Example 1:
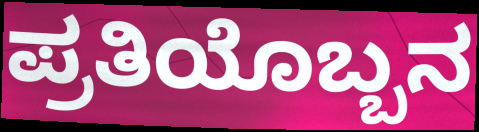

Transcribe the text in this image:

ಪ್ರತಿಯೊಬ್ಬನ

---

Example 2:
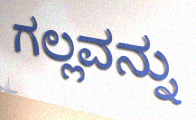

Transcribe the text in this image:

ಗಲ್ಲವನ್ನು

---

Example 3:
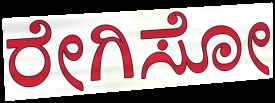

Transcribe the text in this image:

ರೇಗಿಸೋ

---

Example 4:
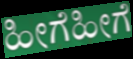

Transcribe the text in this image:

ಹೀಗೆಹೀಗೆ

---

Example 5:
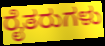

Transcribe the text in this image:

ರೈತರುಗಳು